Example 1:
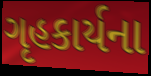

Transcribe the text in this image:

ગૃહકાર્યના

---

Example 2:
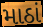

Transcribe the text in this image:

માઠાં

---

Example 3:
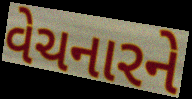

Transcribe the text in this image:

વેચનારને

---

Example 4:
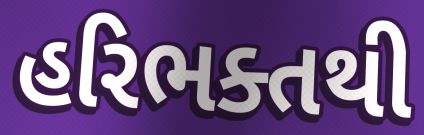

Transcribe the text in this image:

હરિભક્તથી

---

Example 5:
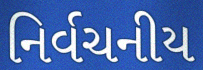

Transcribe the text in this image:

નિર્વચનીય